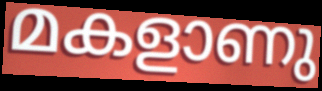
മകളാണു